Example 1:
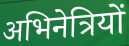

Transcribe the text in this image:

अभिनेत्रियों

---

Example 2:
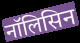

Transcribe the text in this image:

नॉलिसिन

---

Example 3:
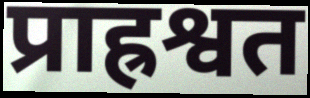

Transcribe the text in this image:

प्राह्रश्वत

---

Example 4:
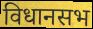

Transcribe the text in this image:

विधानसभ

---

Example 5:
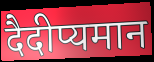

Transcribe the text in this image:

दैदीप्यमान